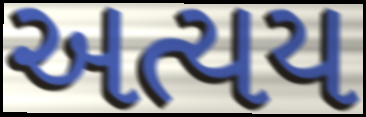
અત્યય